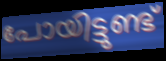
പോയിട്ടുണ്ട്